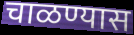
चाळण्यास